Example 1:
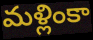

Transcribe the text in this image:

మళ్లింకా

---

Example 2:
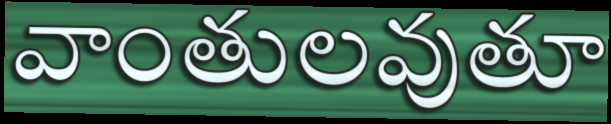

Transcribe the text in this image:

వాంతులవుతూ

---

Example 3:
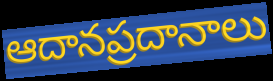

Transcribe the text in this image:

ఆదానప్రదానాలు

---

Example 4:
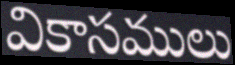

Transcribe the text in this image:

వికాసములు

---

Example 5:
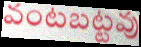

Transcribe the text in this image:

వంటబట్టవు